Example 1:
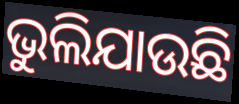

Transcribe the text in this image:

ଭୁଲିଯାଉଛି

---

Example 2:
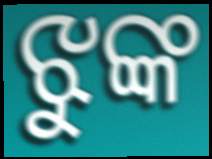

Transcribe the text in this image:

ଝୁଙ୍କ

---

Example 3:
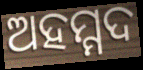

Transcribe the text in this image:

ଅହମ୍ମଦ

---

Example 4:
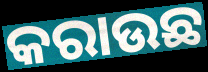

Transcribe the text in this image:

କରାଉଛ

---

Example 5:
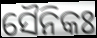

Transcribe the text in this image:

ସୈନିକଃ